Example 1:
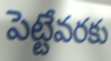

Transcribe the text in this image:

పెట్టేవరకు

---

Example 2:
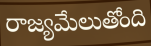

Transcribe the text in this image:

రాజ్యమేలుతోంది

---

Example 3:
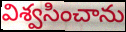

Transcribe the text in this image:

విశ్వసించాను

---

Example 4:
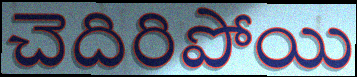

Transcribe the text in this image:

చెదిరిపోయి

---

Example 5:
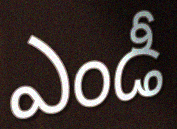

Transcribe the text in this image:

ఎండీ